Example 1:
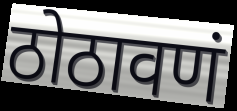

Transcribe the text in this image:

ठोठावणं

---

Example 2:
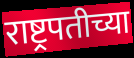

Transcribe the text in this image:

राष्ट्रपतीच्या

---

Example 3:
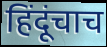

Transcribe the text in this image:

हिंदूंचाच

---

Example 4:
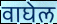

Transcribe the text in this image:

वाघेल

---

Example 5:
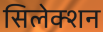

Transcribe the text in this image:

सिलेक्शन